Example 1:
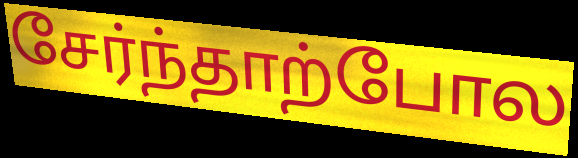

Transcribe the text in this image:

சேர்ந்தாற்போல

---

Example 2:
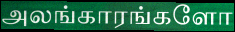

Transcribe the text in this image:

அலங்காரங்களோ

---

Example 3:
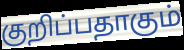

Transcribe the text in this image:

குறிப்பதாகும்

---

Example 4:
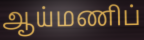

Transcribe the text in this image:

ஆய்மணிப்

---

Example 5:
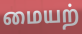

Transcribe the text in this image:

மையற்